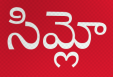
సిమ్లో